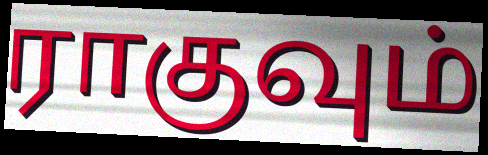
ராகுவும்